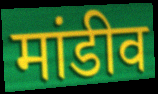
मांडीव